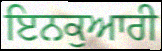
ਇਨਕੁਆਰੀ